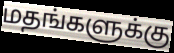
மதங்களுக்கு